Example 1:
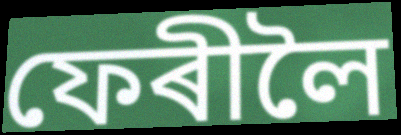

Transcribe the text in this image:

ফেৰীলৈ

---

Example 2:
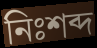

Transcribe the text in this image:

নিঃশব্দ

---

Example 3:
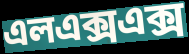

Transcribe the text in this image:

এলএক্সএক্স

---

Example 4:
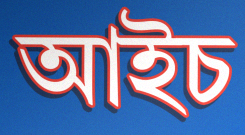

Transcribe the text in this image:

আইচ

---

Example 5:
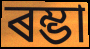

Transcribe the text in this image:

ৰম্ভা